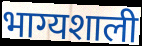
भाग्यशाली